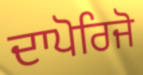
ਦਾਪੋਰਿਜੋ